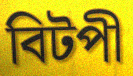
বিটপী